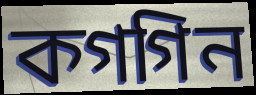
কগগিন